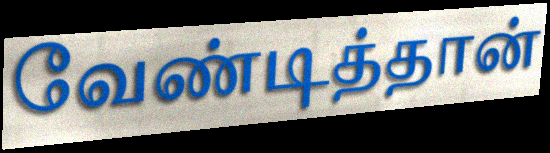
வேண்டித்தான்